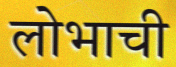
लोभाची